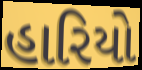
હારિયો